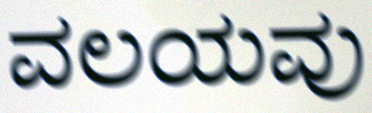
ವಲಯವು